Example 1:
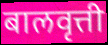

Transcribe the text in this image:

बालवृत्ती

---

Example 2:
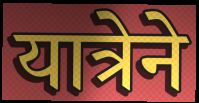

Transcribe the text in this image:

यात्रेने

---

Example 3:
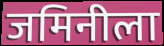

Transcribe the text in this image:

जमिनीला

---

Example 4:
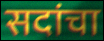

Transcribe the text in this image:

सदांचा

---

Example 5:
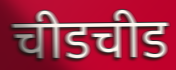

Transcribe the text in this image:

चीडचीड